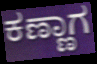
ಕಣ್ಣಾಗ